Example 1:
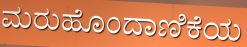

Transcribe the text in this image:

ಮರುಹೊಂದಾಣಿಕೆಯ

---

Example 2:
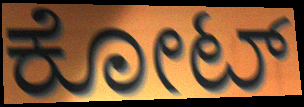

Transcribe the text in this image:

ಕೋಟ್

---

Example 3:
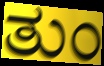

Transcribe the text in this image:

ತುಂ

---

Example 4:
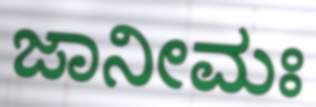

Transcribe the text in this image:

ಜಾನೀಮಃ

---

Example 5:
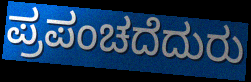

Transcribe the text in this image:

ಪ್ರಪಂಚದೆದುರು